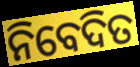
ନିବେଦିତ